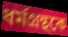
ধর্মগ্রন্থকে